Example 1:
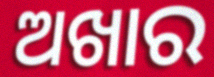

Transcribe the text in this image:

ଅଖାର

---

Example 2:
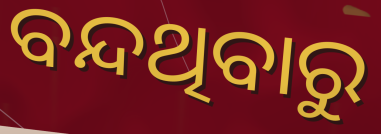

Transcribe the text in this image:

ବନ୍ଦଥିବାରୁ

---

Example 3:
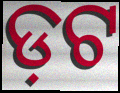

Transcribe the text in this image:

ଡ଼ଟ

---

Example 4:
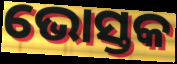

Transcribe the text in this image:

ଭୋସ୍ତକ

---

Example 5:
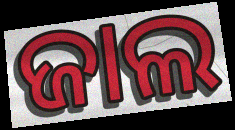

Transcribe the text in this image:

ଜାଲ